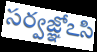
సర్వజ్ఞోఽసి